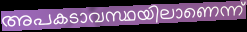
അപകടാവസ്ഥയിലാണെന്ന്